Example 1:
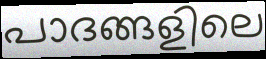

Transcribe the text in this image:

പാദങ്ങളിലെ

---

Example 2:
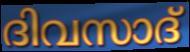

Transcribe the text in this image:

ദിവസാദ്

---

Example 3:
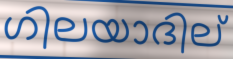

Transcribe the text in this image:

ഗിലയാദില്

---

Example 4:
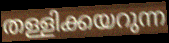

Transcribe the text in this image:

തള്ളിക്കയറുന്ന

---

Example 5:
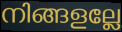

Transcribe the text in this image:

നിങ്ങളല്ലേ